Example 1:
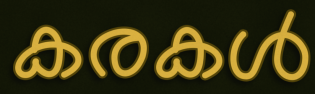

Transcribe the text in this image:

കരകൾ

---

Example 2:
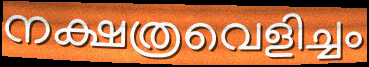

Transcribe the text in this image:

നക്ഷത്രവെളിച്ചം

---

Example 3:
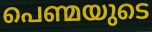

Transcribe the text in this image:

പെണ്മയുടെ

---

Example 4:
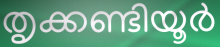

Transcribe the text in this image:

തൃക്കണ്ടിയൂർ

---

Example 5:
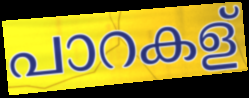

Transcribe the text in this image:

പാറകള്